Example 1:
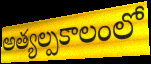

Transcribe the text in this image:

అత్యల్పకాలంలో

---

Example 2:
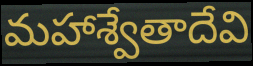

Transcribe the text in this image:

మహాశ్వేతాదేవి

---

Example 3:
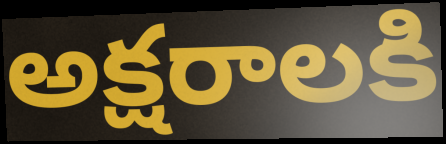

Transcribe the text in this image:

అక్షరాలకి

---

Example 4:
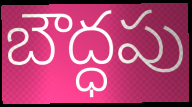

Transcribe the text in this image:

బౌద్ధపు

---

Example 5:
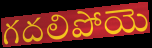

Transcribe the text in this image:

గదలిపోయె